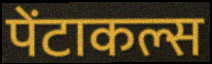
पेंटाकल्स